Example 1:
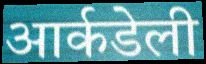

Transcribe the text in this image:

आर्कडेली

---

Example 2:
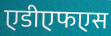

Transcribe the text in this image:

एडीएफएस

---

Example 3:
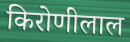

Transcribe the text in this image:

किरोणीलाल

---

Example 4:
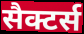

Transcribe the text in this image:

सैक्टर्स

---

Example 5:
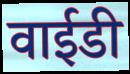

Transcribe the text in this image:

वाईडी